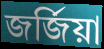
জর্জিয়া